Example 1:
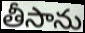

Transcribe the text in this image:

తీసాను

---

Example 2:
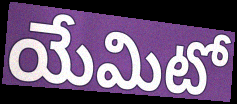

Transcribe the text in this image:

యేమిటో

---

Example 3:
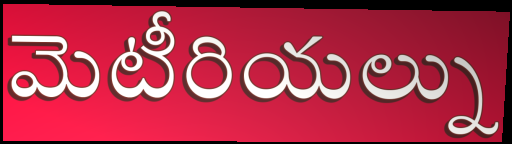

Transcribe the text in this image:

మెటీరియల్ను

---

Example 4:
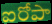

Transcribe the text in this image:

ఐరోపా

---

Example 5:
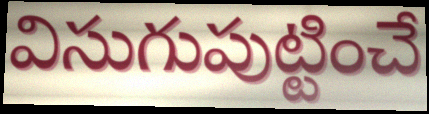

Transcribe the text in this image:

విసుగుపుట్టించే